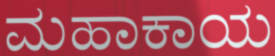
ಮಹಾಕಾಯ